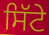
ਸਿੱਟੇ